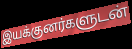
இயக்குனர்களுடன்